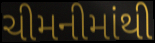
ચીમનીમાંથી